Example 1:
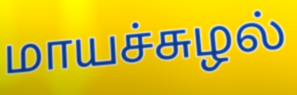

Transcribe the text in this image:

மாயச்சுழல்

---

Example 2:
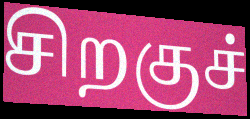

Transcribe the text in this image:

சிறகுச்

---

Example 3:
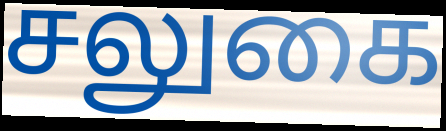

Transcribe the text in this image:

சலுகை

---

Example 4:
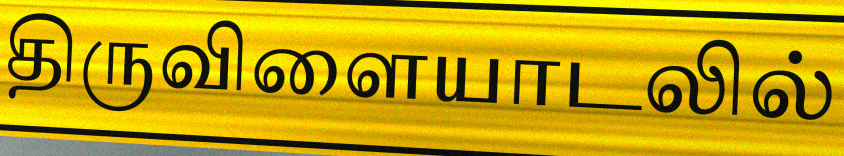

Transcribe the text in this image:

திருவிளையாடலில்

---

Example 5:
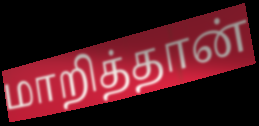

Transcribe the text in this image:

மாறித்தான்